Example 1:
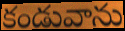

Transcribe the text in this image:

కండువాను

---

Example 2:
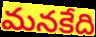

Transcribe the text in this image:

మనకేది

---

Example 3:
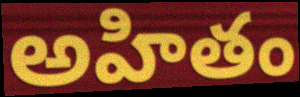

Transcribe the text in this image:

అహితం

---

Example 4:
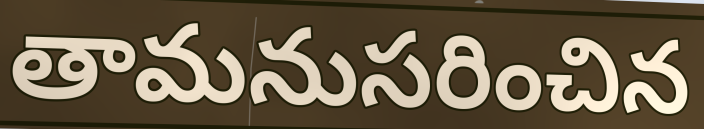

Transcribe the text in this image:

తామనుసరించిన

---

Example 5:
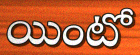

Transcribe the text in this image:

యింటో